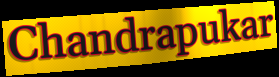
Chandrapukar